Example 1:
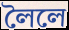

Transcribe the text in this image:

লৈলে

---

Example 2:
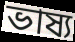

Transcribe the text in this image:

ভাষ্য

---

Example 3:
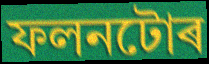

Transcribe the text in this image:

ফলনটোৰ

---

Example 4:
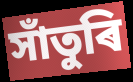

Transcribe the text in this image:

সাঁতুৰি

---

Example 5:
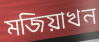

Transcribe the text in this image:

মজিয়াখন